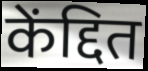
केंद्दित